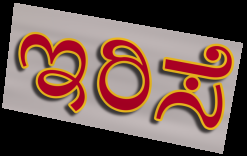
ಇರಿಸೆ